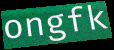
ongfk